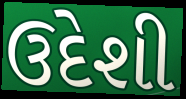
ઉદેશી